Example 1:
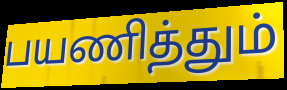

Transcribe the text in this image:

பயணித்தும்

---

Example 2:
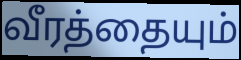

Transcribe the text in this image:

வீரத்தையும்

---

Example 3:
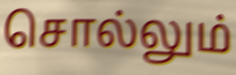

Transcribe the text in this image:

சொல்லும்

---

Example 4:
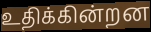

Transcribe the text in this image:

உதிக்கின்றன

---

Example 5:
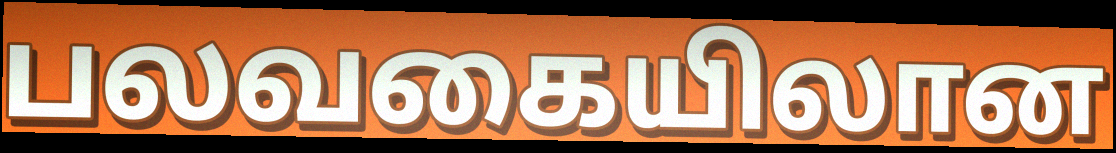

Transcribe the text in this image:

பலவகையிலான